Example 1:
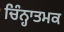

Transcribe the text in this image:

ਚਿੰਨ੍ਹਾਤਮਕ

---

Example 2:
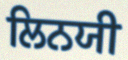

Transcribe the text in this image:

ਲਿਨਯੀ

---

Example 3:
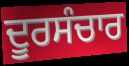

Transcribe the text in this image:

ਦੂਰਸੰਚਾਰ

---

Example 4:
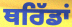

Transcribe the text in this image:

ਥਰਿੱਡਾਂ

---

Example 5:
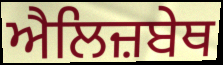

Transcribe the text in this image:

ਐਲਿਜ਼ਬੇਥ